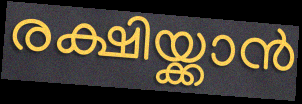
രക്ഷിയ്ക്കാൻ